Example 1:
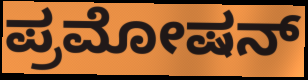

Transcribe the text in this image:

ಪ್ರಮೋಷನ್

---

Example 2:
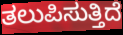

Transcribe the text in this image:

ತಲುಪಿಸುತ್ತಿದೆ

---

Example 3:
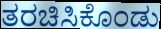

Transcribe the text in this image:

ತರಚಿಸಿಕೊಂಡು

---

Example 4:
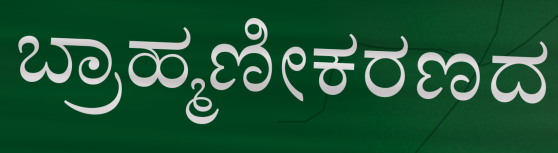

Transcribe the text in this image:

ಬ್ರಾಹ್ಮಣೀಕರಣದ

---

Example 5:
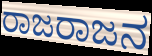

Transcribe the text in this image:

ರಾಜರಾಜನ